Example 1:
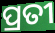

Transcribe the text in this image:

ପ୍ରତୀ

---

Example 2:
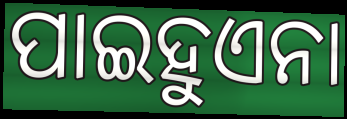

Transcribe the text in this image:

ପାଇହୁଏନା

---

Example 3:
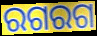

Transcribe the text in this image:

ରଗରଗ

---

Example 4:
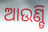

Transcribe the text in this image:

ଆଉଣ୍ଡି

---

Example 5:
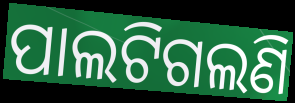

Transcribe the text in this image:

ପାଲଟିଗଲଣି